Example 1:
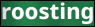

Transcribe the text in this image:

roosting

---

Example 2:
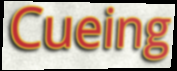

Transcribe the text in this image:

Cueing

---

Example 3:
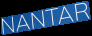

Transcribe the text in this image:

NANTAR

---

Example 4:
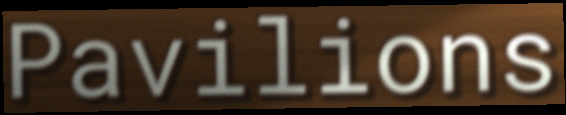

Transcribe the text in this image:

Pavilions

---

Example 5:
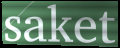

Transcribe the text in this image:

saket